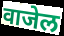
वाजेल